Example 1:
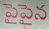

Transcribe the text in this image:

పైపైన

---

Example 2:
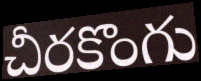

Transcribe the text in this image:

చీరకొంగు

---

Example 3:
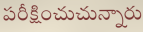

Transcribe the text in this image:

పరీక్షించుచున్నారు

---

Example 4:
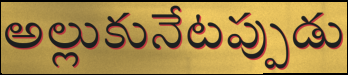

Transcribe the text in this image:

అల్లుకునేటప్పుడు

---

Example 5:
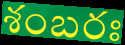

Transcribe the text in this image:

శంబరః